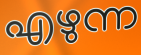
എഴുന്ന